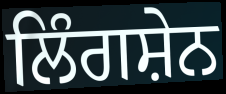
ਲਿੰਗਸ਼ੇਨ